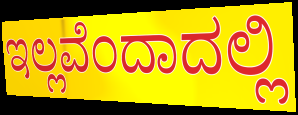
ಇಲ್ಲವೆಂದಾದಲ್ಲಿ